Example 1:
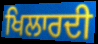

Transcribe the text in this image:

ਖਿਲਾਰਦੀ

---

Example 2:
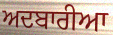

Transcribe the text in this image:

ਅਦਬਾਰੀਆ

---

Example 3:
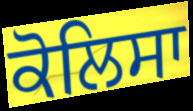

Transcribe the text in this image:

ਕੋਲਿਸਾ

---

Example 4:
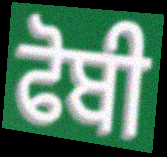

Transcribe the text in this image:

ਫੋਬੀ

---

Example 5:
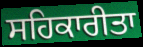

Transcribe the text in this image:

ਸਹਿਕਾਰੀਤਾ